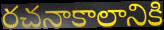
రచనాకాలానికి